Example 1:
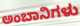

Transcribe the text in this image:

ಅಂಬಾನಿಗಳು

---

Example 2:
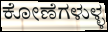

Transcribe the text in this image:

ಕೋಣೆಗಳುಳ್ಳ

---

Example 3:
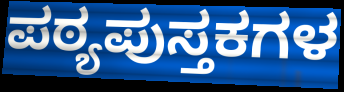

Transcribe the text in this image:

ಪಠ್ಯಪುಸ್ತಕಗಳ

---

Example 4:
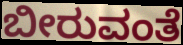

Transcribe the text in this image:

ಬೀರುವಂತೆ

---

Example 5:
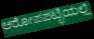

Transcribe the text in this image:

ಆರೋಪಪಟ್ಟಿಯಲ್ಲಿ